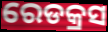
ରେଡକ୍ରସ